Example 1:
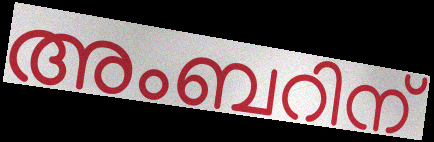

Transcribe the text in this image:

അംബറിന്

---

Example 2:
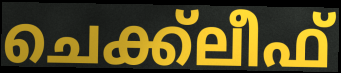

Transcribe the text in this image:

ചെക്ക്ലീഫ്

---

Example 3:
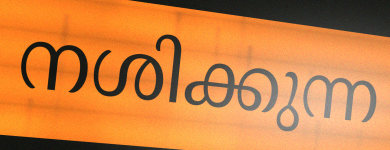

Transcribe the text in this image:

നശിക്കുന്ന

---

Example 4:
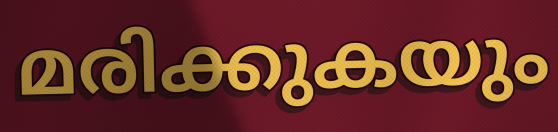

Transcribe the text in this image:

മരിക്കുകയും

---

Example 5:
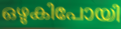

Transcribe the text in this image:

ഒഴുകിപോയി